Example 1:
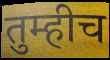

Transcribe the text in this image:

तुम्हीच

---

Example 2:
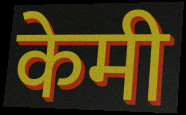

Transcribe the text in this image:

केमी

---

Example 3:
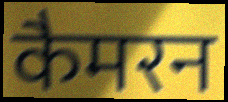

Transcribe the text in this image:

कैमरन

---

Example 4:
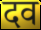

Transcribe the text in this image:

दव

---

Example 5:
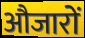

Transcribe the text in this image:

औजारों